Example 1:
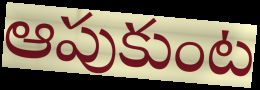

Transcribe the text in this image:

ఆపుకుంట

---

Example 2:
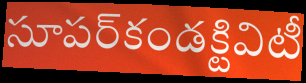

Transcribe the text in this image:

సూపర్‌కండక్టివిటీ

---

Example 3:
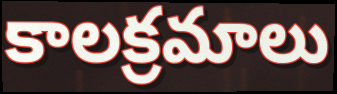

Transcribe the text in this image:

కాలక్రమాలు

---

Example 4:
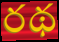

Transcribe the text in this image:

రథ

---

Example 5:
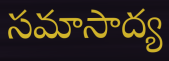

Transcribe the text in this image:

సమాసాద్య